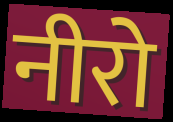
नीरो